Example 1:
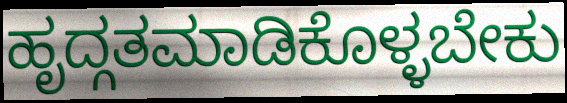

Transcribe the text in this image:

ಹೃದ್ಗತಮಾಡಿಕೊಳ್ಳಬೇಕು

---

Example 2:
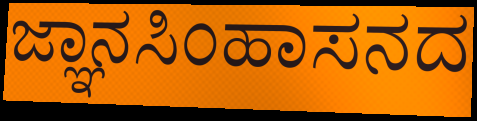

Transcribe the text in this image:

ಜ್ಞಾನಸಿಂಹಾಸನದ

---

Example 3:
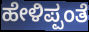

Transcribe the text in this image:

ಹೇಳಿಪ್ಪಂತೆ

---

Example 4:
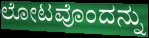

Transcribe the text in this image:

ಲೋಟವೊಂದನ್ನು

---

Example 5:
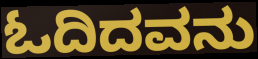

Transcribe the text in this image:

ಓದಿದವನು